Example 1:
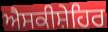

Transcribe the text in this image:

ਐਸਕੀਸ਼ੇਹਿਰ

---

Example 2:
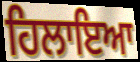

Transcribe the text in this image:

ਹਿਲਾਇਆ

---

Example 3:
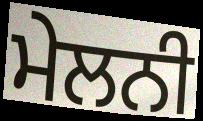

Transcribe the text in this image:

ਮੇਲਨੀ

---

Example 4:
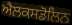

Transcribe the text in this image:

ਐਲਕਸਡੋਲਿਨ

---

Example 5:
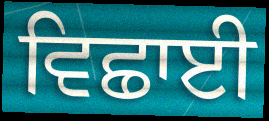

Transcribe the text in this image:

ਵਿਛਾਈ